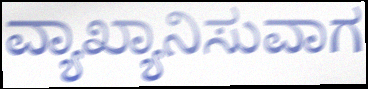
ವ್ಯಾಖ್ಯಾನಿಸುವಾಗ